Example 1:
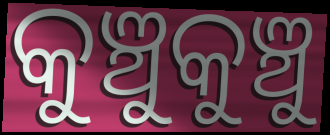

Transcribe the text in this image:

କୁଞ୍ଚୁକୁଞ୍ଚୁ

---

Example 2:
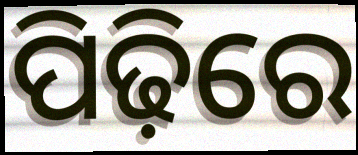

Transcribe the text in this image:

ପିଢ଼ିରେ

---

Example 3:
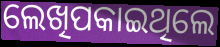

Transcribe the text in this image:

ଲେଖିପକାଇଥିଲେ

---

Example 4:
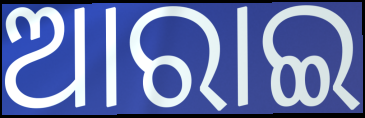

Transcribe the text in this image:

ଆରାଇ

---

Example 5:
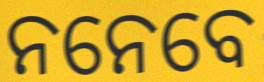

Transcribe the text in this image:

ନନେବେ